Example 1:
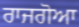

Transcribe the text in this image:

ਰਾਜਗੋਆ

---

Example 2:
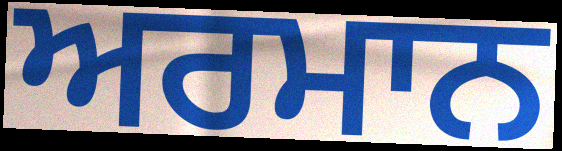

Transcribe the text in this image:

ਅਰਮਾਨ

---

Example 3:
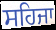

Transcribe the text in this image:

ਸਹਿਜਾ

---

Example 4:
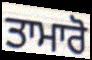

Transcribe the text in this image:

ਤਾਮਾਰੋ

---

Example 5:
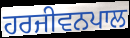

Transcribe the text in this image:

ਹਰਜੀਵਨਪਾਲ